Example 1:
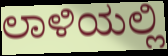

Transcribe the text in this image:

ಲಾಳಿಯಲ್ಲಿ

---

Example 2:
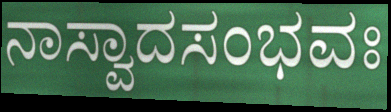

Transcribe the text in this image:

ನಾಸ್ವಾದಸಂಭವಃ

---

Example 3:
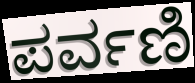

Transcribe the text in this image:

ಪರ್ವಣಿ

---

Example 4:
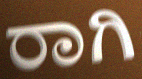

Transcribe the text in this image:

ರಾಗಿ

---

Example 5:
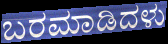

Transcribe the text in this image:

ಬರಮಾಡಿದಳು